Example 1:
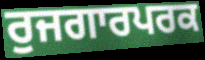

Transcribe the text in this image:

ਰੁਜਗਾਰਪਰਕ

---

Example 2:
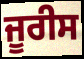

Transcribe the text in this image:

ਜੂਰੀਸ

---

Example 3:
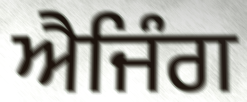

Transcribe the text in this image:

ਐਜਿੰਗ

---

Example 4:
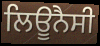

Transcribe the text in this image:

ਲਿਊਨੈਸੀ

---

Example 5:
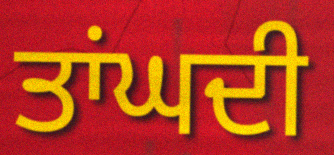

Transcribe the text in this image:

ਤਾਂਘਦੀ